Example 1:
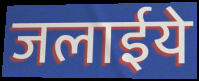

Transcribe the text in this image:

जलाईये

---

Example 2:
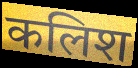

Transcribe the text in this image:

कलिश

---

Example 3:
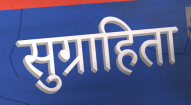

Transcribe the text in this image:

सुग्राहिता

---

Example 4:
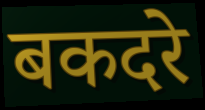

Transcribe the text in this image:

बकदरे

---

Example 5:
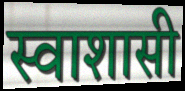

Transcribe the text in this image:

स्वाशासी